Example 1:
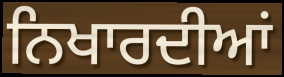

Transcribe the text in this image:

ਨਿਖਾਰਦੀਆਂ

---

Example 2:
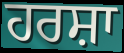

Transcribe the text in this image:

ਹਰਸ਼ਾ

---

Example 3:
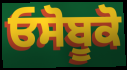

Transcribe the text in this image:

ਓਸੋਬੂਕੋ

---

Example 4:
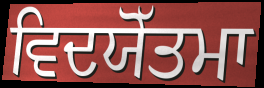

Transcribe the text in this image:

ਵਿਦਯੋੱਤਮਾ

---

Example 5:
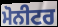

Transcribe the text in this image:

ਮੋਨੀਟਰ